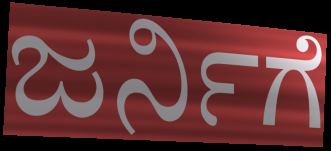
ಜರ್ನಿಗೆ